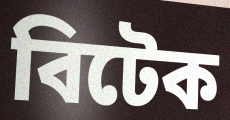
বিটেক